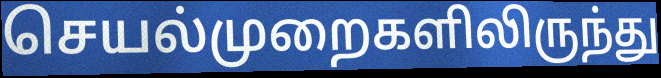
செயல்முறைகளிலிருந்து